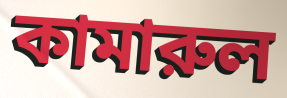
কামারুল